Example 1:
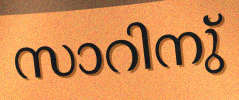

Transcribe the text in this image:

സാറിനു്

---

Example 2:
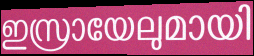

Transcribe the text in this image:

ഇസ്രായേലുമായി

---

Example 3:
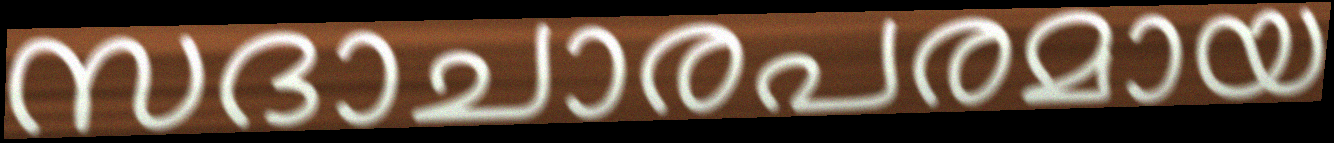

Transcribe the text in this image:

സദാചാരപരമായ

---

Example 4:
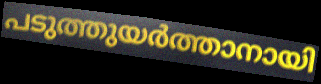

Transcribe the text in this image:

പടുത്തുയർത്താനായി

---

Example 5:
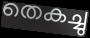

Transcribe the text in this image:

തെകച്ചു